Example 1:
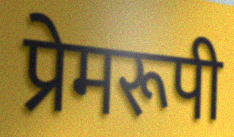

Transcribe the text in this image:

प्रेमरूपी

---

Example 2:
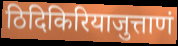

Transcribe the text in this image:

ठिदिकिरियाजुत्ताणं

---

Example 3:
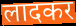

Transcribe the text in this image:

लादकर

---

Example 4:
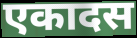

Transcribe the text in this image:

एकादस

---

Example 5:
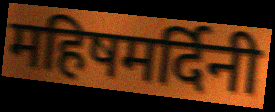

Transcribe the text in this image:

महिषमर्दिनी